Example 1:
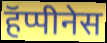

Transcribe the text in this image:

हॅप्पीनेस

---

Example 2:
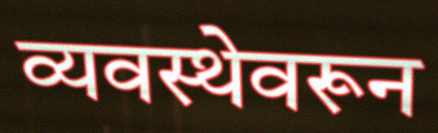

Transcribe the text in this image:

व्यवस्थेवरून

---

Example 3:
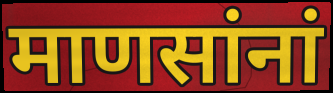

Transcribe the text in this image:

माणसांनां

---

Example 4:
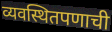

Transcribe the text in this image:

व्यवस्थितपणाची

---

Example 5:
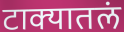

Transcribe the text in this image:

टाक्यातलं